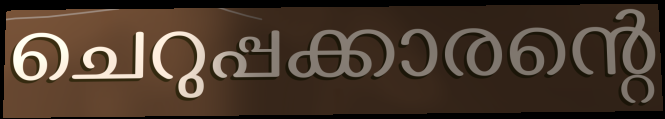
ചെറുപ്പക്കാരന്റെ